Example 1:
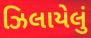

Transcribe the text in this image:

ઝિલાયેલું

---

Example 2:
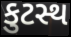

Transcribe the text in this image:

કુટસ્થ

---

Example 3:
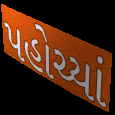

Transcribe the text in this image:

પહોચ્યાં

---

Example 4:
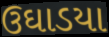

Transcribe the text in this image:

ઉઘાડયા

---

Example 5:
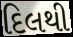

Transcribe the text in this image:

દિલથી